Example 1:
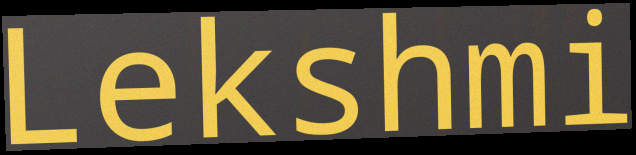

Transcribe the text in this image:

Lekshmi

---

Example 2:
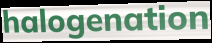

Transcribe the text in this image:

halogenation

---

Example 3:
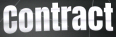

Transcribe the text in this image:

Contract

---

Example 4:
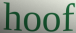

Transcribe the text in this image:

hoof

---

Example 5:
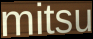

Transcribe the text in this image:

mitsu